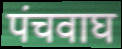
पंचवाघ